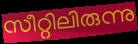
സീറ്റിലിരുന്നു